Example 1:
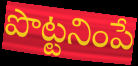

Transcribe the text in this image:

పొట్టనింపే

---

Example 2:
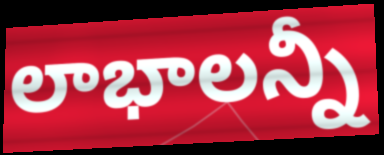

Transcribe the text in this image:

లాభాలన్నీ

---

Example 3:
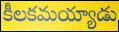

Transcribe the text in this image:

కీలకమయ్యాడు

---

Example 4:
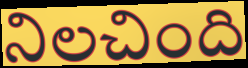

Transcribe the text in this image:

నిలచింది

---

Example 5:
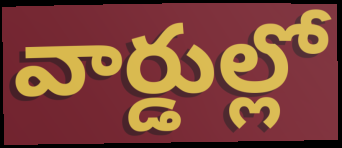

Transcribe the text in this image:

వార్డుల్లో